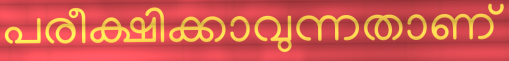
പരീക്ഷിക്കാവുന്നതാണ്